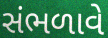
સંભળાવે